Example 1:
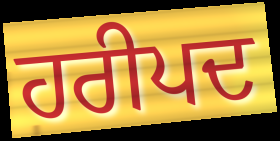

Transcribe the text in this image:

ਹਰੀਪਦ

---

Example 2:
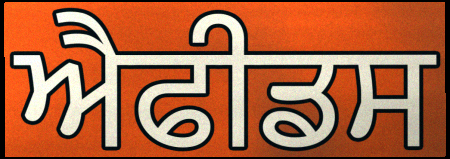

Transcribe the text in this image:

ਐਫੀਡਸ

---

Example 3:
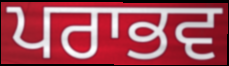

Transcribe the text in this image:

ਪਰਾਭਵ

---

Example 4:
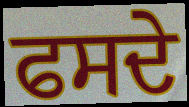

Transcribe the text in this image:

ਫਸਦੇ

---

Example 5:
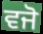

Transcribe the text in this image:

ਵਜੋ